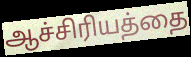
ஆச்சிரியத்தை